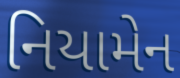
નિયામેન